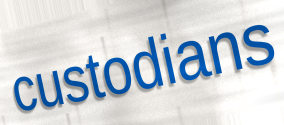
custodians